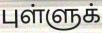
புள்ளுக்